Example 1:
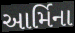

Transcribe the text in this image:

આર્મિના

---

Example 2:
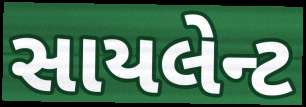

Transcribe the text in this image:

સાયલેન્ટ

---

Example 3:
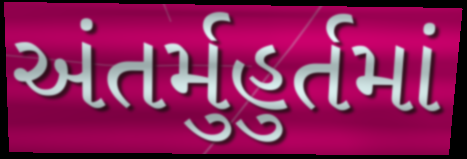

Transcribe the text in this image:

અંતર્મુહુર્તમાં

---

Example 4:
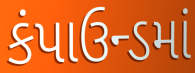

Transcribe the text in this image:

કંપાઉન્ડમાં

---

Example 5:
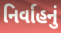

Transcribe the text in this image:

નિર્વાહનું